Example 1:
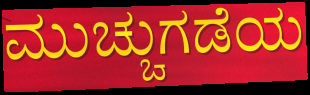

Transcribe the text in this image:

ಮುಚ್ಚುಗಡೆಯ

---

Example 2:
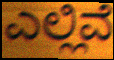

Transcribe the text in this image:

ಎಲ್ಲಿವೆ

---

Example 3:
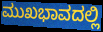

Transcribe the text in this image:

ಮುಖಭಾವದಲ್ಲಿ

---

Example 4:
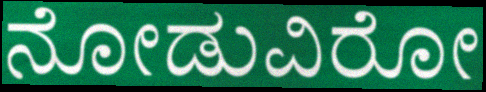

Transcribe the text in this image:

ನೋಡುವಿರೋ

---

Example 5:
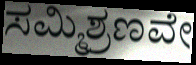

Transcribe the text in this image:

ಸಮ್ಮಿಶ್ರಣವೇ